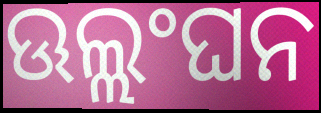
ଊଲ୍ଲଂଘନ